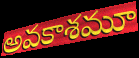
అవకాశమూ